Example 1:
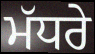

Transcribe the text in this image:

ਮੱਧਰੇ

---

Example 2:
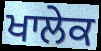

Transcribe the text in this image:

ਖਾਲੇਕ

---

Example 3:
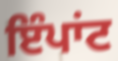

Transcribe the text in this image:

ਇੰਪਾਂਟ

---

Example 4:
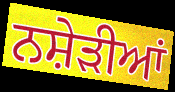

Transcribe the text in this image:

ਨਸ਼ੇੜੀਆਂ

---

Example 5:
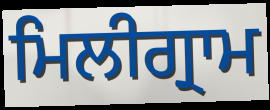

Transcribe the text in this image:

ਮਿਲੀਗ੍ਰਾਮ